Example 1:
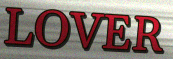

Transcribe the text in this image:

LOVER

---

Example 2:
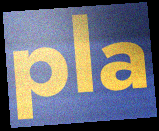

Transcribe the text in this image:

pla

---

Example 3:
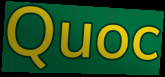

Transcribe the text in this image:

Quoc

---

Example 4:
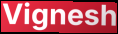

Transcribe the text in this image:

Vignesh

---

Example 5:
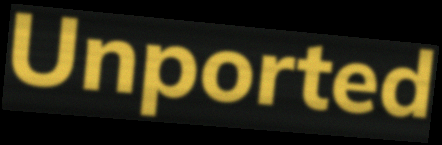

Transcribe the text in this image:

Unported